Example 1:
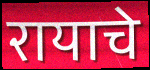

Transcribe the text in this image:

रायाचे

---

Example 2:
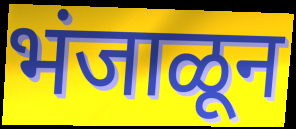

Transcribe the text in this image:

भंजाळून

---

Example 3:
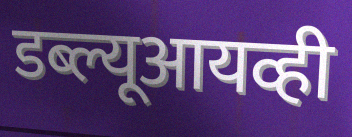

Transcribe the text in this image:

डब्ल्यूआयव्ही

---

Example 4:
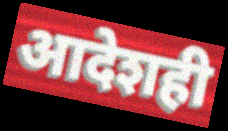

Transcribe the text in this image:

आदेशही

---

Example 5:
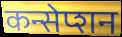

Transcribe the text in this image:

कन्सेप्शन